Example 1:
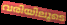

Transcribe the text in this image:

വരിയിലൂടെ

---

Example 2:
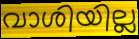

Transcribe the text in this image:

വാശിയില്ല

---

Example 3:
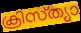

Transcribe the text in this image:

ക്രിസ്‌ത്യാ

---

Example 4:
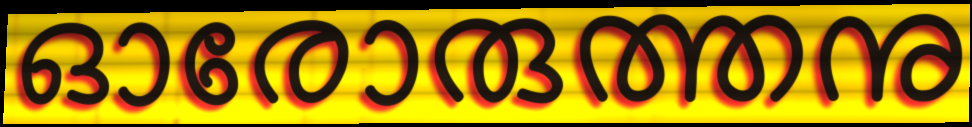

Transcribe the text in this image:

ഓരോരുത്തനു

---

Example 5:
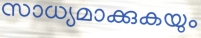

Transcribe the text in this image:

സാധ്യമാക്കുകയും